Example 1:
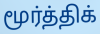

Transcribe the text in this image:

மூர்த்திக்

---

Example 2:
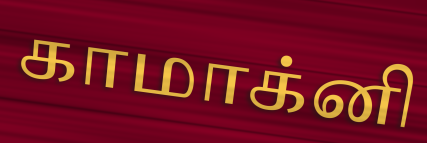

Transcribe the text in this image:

காமாக்னி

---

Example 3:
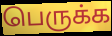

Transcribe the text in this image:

பெருக்க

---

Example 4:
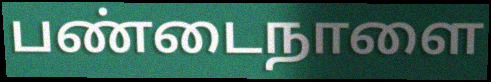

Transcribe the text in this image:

பண்டைநாளை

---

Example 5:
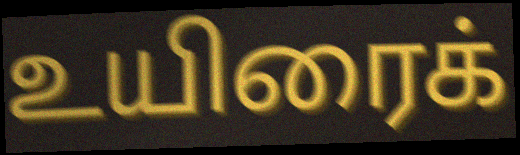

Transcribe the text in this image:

உயிரைக்